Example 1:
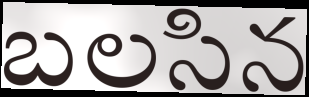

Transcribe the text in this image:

బలసిన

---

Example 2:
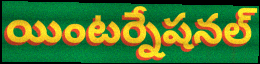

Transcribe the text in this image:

యింటర్నేషనల్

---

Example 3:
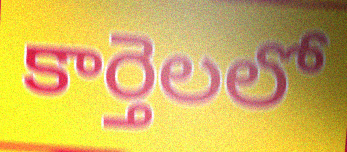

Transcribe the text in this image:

కార్తెలలో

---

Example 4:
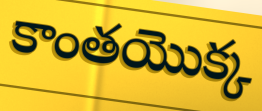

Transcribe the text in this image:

కాంతయొక్క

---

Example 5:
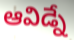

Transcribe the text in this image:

ఆవిడ్నే